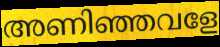
അണിഞ്ഞവളേ